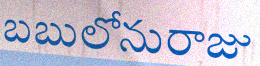
బబులోనురాజు